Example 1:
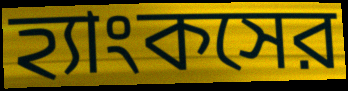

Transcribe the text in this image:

হ্যাংকসের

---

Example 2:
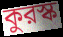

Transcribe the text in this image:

কুরস্ক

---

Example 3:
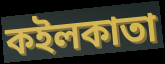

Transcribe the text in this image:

কইলকাতা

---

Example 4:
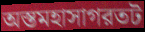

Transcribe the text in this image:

অস্তমহাসাগরতট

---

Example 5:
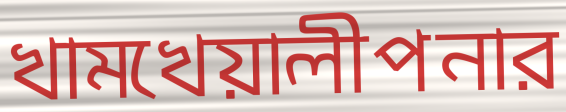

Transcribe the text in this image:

খামখেয়ালীপনার